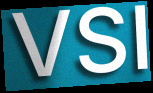
VSI